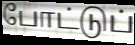
போட்டுப்